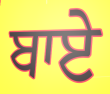
ਬਾਏ